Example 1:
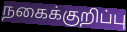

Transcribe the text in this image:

நகைக்குறிப்பு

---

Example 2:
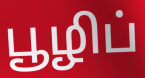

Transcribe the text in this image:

பூழிப்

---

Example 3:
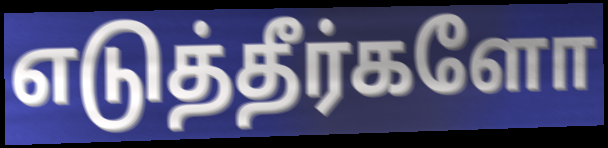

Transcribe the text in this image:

எடுத்தீர்களோ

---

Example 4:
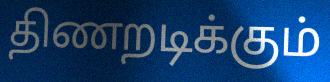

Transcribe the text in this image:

திணறடிக்கும்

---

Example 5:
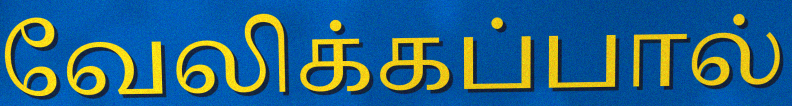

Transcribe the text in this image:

வேலிக்கப்பால்